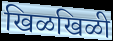
खिळखिळी